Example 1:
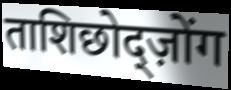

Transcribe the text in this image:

ताशिछोद्ज़ोंग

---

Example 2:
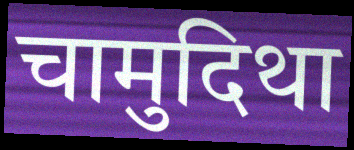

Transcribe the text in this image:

चामुदिथा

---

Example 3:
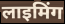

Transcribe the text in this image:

लाइमिंग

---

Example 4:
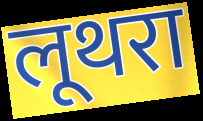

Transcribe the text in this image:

लूथरा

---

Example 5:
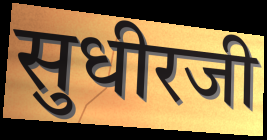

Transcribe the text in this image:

सुधीरजी